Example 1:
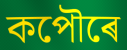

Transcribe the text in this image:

কপৌৰে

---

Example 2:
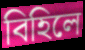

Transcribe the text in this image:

বিহিলে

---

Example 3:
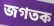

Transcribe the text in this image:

জগতক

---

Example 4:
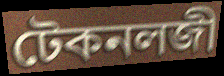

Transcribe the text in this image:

টেকনলজী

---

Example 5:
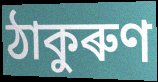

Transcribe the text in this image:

ঠাকুৰুণ